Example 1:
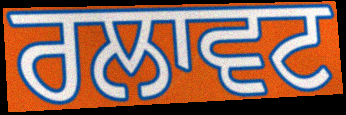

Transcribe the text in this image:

ਰਲਾਵਟ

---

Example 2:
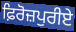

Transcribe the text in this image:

ਫ਼ਿਰੋਜ਼ਪੁਰੀਏ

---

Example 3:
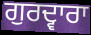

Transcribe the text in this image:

ਗੁਰਦ੍ਵਾਰਾ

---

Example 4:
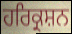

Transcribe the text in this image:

ਹਰਿਕ੍ਰਸ਼ਨ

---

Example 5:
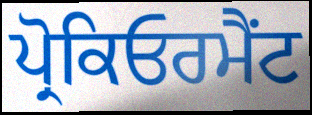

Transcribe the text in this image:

ਪ੍ਰੋਕਿਓਰਮੈਂਟ